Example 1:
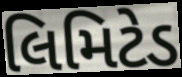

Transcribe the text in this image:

લિમિટેડ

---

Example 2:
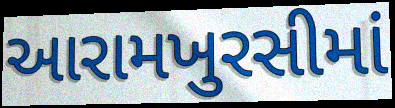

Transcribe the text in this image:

આરામખુરસીમાં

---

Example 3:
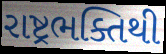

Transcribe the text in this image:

રાષ્ટ્રભક્તિથી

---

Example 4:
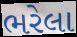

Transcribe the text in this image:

ભરેલા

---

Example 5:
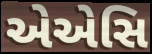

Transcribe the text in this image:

એએસિ